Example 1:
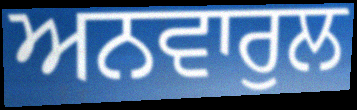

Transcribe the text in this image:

ਅਨਵਾਰੁਲ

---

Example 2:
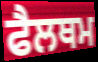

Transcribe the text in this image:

ਫੈਲਥਮ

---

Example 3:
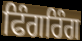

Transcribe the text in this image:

ਫਿੰਗਰਿੰਗ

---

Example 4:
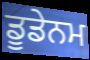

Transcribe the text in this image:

ਡੂਡੇਨਮ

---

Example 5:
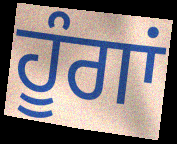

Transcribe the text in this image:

ਹੂੰਗਾਂ